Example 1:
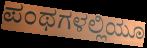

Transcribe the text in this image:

ಪಂಥಗಳಲ್ಲಿಯೂ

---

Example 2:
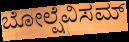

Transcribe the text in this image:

ಬೋಲ್ಷೆವಿಸಮ್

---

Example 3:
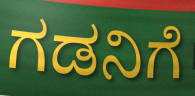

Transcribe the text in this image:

ಗಡನಿಗೆ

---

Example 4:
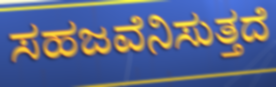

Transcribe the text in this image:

ಸಹಜವೆನಿಸುತ್ತದೆ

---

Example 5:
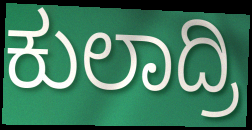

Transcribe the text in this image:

ಕುಲಾದ್ರಿ